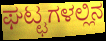
ಘಟ್ಟಗಳಲ್ಲಿನ